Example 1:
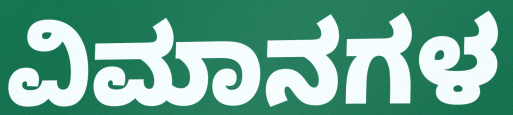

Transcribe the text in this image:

ವಿಮಾನಗಳ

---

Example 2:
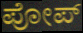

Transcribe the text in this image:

ಪೋಪ್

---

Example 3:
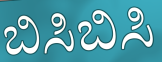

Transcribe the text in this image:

ಬಿಸಿಬಿಸಿ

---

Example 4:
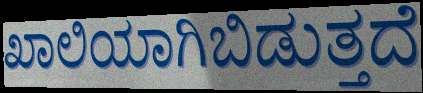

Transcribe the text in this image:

ಖಾಲಿಯಾಗಿಬಿಡುತ್ತದೆ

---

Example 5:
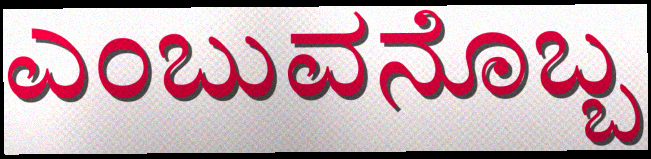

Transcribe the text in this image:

ಎಂಬುವನೊಬ್ಬ